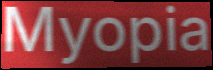
Myopia